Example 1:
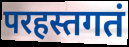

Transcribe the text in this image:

परहस्तगतं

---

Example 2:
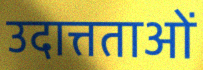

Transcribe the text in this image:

उदात्तताओं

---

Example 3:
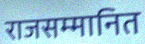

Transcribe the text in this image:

राजसम्मानित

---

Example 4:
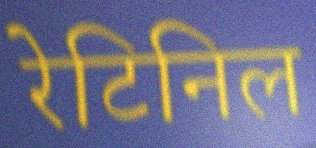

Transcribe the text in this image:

रेटिनिल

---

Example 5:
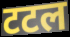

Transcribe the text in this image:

टटल